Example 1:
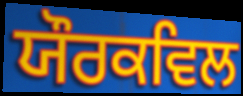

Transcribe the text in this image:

ਯੌਰਕਵਿਲ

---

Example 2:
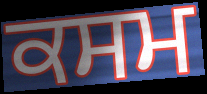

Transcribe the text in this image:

ਕਸਮ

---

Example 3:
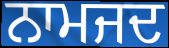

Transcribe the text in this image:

ਨਾਮਜਦ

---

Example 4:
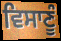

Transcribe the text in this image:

ਵਿਸਾਣੂੰ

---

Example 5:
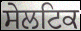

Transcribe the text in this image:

ਸੇਲਟਿਕ